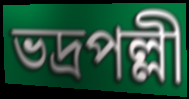
ভদ্রপল্লী